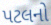
પટલનો